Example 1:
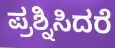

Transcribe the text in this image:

ಪ್ರಶ್ನಿಸಿದರೆ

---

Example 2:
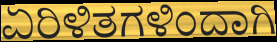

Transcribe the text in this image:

ಏರಿಳಿತಗಳಿಂದಾಗಿ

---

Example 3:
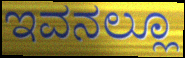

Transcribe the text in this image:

ಇವನಲ್ಲೂ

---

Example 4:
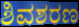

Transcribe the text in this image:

ಶಿವಶರಣ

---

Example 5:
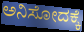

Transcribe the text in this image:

ಅನಿಸೋದಕ್ಕೆ